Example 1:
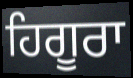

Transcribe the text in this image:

ਹਿਗੂਰਾ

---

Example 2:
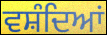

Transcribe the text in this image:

ਵਸ਼ੰਦਿਆਂ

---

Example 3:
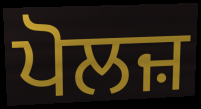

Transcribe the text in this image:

ਪੋਲਜ਼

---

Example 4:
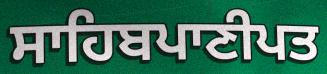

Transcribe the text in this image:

ਸਾਹਿਬਪਾਣੀਪਤ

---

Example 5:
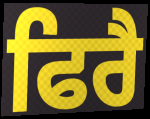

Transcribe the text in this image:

ਫਿਰੈ